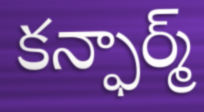
కన్ఫార్మ్